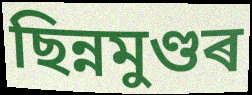
ছিন্নমুণ্ডৰ